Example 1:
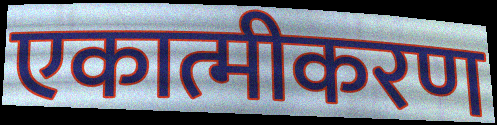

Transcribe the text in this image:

एकात्मीकरण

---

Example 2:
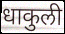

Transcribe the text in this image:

धाकुली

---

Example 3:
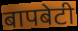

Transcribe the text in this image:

बापबेटी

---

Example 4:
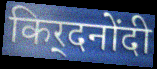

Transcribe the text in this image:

किर्दनोंदी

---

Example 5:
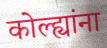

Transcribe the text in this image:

कोल्ह्यांना